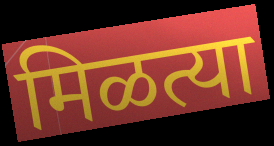
मिळत्या